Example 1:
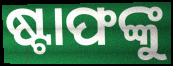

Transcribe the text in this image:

ଷ୍ଟାଫଙ୍କୁ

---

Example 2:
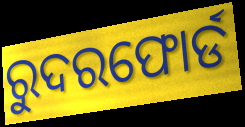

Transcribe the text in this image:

ରୁଦରଫୋର୍ଡ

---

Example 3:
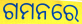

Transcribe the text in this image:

ଗମନରେ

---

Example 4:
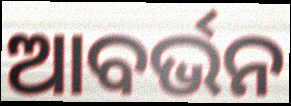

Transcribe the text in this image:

ଆବର୍ଭନ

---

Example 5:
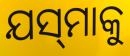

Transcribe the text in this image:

ଯସ୍‌ମାକୁ